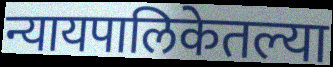
न्यायपालिकेतल्या